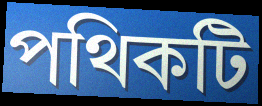
পথিকটি